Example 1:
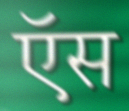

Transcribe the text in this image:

ऍस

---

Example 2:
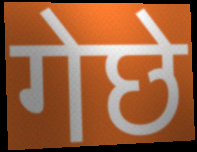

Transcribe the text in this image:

गेछे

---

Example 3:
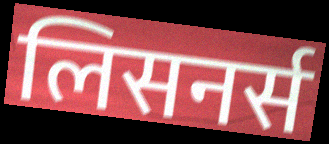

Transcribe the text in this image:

लिसनर्स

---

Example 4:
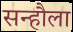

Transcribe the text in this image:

सन्हौला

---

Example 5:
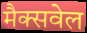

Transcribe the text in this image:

मैक्‍सवेल